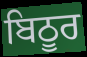
ਬਿਠੂਰ